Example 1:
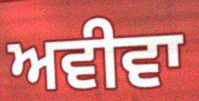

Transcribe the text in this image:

ਅਵੀਵਾ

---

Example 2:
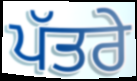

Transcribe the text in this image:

ਪੱਤਰੇ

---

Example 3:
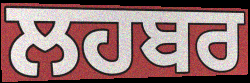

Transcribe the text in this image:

ਲਹਬਰ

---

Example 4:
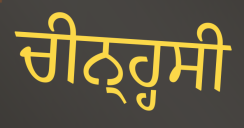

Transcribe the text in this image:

ਚੀਨ੍ਹ੍ਹਸੀ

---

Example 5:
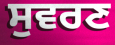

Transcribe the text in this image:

ਸੁਵਰਣ